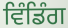
ਵਿੰਡਿੰਗ